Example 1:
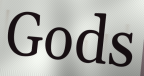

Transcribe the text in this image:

Gods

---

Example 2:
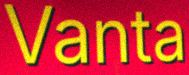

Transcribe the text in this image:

Vanta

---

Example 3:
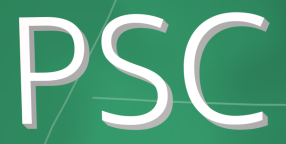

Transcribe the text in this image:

PSC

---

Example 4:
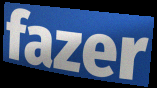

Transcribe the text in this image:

fazer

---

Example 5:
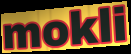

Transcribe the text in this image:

mokli